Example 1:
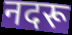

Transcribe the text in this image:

नदरू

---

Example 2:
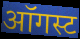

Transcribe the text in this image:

ऑगस्ट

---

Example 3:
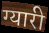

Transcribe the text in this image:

ग्यारी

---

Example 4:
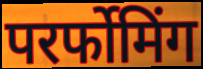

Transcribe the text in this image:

परर्फोमिंग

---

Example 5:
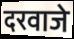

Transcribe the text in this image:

दरवाजे